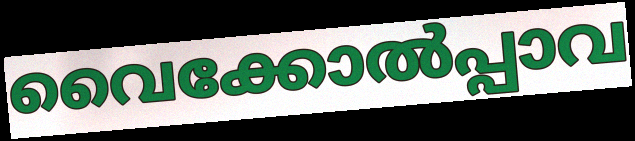
വൈക്കോൽപ്പാവ